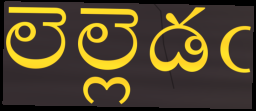
లెల్లెడఁ